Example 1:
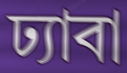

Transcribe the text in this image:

ঢ্যাবা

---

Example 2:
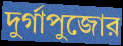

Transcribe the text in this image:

দুর্গাপুজোর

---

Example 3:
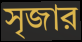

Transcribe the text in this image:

সৃজার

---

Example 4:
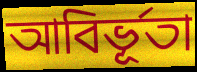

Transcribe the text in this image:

আবির্ভূতা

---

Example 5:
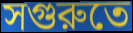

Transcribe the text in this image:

সগুরুতে